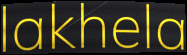
lakhela